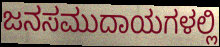
ಜನಸಮುದಾಯಗಳಲ್ಲಿ